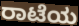
ರಾಟೆಯ